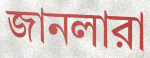
জানলারা